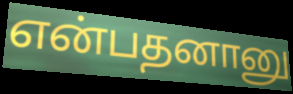
என்பதனானு